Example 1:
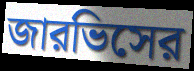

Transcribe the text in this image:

জারভিসের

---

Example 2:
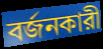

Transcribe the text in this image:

বর্জনকারী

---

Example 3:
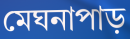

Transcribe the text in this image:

মেঘনাপাড়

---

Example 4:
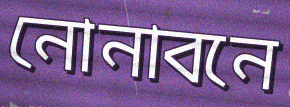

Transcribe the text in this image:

নোনাবনে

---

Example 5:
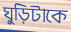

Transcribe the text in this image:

ঘুড়িটাকে